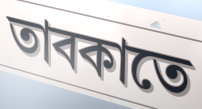
তাবকাতে